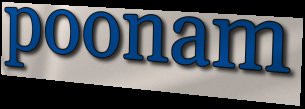
poonam